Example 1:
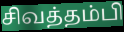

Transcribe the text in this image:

சிவத்தம்பி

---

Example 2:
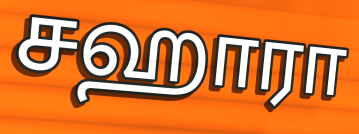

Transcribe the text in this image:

சஹாரா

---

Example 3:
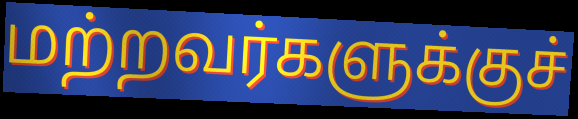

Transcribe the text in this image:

மற்றவர்களுக்குச்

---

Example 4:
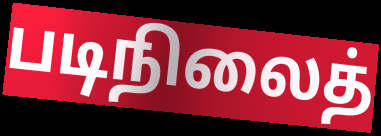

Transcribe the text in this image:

படிநிலைத்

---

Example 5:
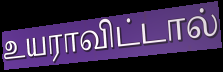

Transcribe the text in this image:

உயராவிட்டால்